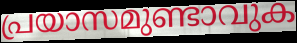
പ്രയാസമുണ്ടാവുക